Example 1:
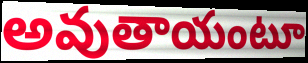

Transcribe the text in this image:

అవుతాయంటూ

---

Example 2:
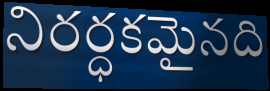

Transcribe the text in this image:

నిరర్ధకమైనది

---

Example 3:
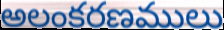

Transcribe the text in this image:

అలంకరణములు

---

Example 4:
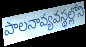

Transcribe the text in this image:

పాలనావ్యవస్థల్లోని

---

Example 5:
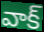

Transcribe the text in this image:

వాక్